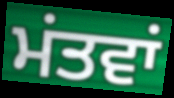
ਮਂਤਵਾਂ